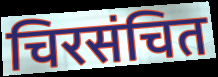
चिरसंचित